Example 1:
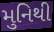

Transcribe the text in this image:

મુનિથી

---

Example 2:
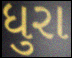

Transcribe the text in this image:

ધુરા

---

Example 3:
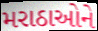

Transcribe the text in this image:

મરાઠાઓને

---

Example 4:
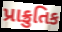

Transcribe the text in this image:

પ્રાક્રુતિક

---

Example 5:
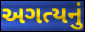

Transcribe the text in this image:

અગત્યનું